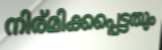
നിര്മിക്കപ്പെട്ടതും